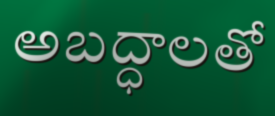
అబద్ధాలతో